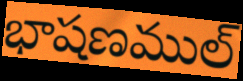
భాషణముల్